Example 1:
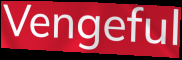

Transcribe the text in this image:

Vengeful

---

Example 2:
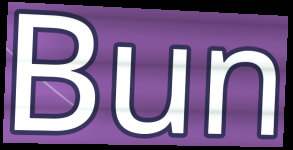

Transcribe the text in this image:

Bun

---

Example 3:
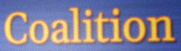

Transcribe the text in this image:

Coalition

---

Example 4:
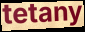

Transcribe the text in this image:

tetany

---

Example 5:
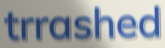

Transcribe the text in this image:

trrashed